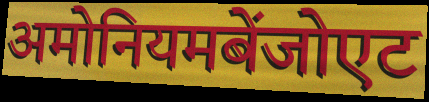
अमोनियमबेंजोएट